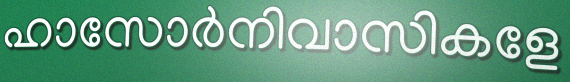
ഹാസോർനിവാസികളേ